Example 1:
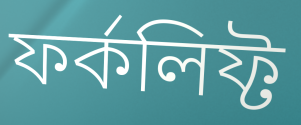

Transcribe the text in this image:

ফর্কলিফ্ট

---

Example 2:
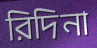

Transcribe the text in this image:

রিদিনা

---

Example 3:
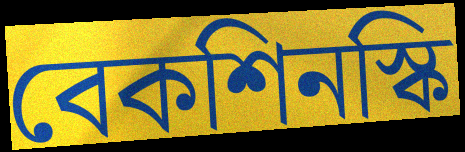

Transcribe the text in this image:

বেকশিনস্কি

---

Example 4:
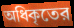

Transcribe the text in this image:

অধিকৃতের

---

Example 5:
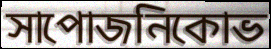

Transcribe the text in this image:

সাপোজনিকোভ